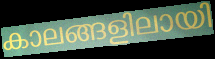
കാലങ്ങളിലായി